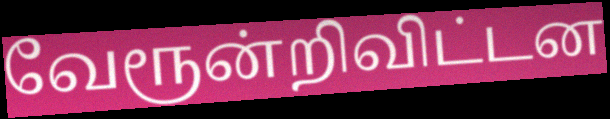
வேரூன்றிவிட்டன